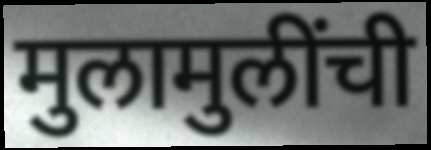
मुलामुलींची